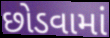
છોડવામાં